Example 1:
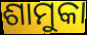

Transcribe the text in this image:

ଶାମୁକା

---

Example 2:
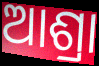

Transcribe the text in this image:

ଆଶ୍ରା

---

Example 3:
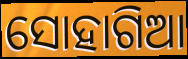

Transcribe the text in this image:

ସୋହାଗିଆ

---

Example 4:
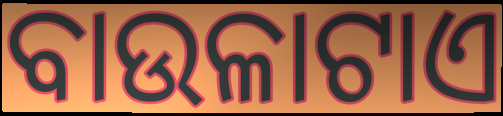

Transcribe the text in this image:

ବାଉଳାଟାଏ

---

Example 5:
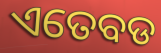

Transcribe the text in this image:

ଏତେବଡ